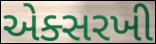
એક્સરખી